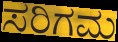
ಸರಿಗಮ